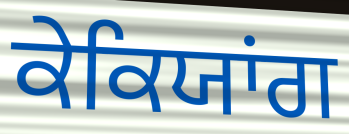
ਕੇਕਿਯਾਂਗ